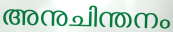
അനുചിന്തനം